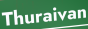
Thuraivan